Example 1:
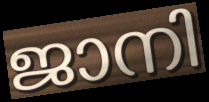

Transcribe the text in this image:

ജാനി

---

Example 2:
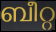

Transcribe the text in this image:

ബീറ്റ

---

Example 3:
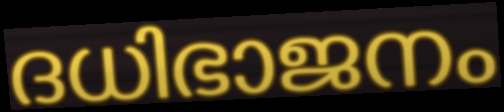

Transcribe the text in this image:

ദധിഭാജനം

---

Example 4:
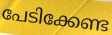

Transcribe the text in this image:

പേടിക്കേണ്ട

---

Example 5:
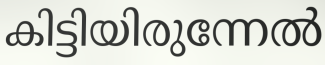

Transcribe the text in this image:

കിട്ടിയിരുന്നേൽ